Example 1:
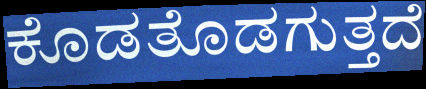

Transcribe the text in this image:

ಕೊಡತೊಡಗುತ್ತದೆ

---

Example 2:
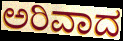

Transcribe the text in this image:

ಅರಿವಾದ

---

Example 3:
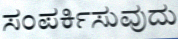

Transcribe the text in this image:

ಸಂಪರ್ಕಿಸುವುದು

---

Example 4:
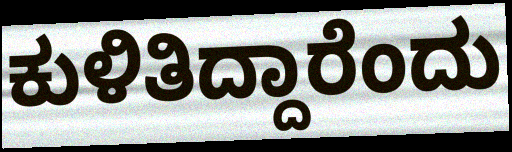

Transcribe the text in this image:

ಕುಳಿತಿದ್ದಾರೆಂದು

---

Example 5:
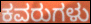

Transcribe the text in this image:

ಕವರುಗಳು